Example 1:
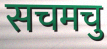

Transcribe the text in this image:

सचमचु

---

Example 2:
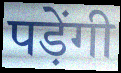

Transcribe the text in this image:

पड़ेंगी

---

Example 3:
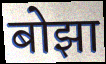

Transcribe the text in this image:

बोझा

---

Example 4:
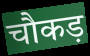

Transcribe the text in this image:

चौकड़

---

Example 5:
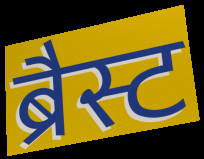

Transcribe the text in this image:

ब्रैस्ट